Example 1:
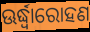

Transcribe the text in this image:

ଊର୍ଦ୍ଧ୍ୱାରୋହଣ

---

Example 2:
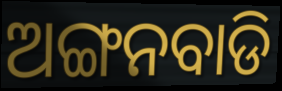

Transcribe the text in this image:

ଅଙ୍ଗନବାଡି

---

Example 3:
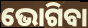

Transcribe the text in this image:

ଭୋଗିବା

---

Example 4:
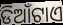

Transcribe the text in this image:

ଡିଆଁଟାଏ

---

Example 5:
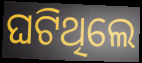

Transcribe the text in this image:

ଘଟିଥିଲେ